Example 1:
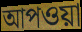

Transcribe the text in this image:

আপওয়া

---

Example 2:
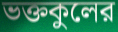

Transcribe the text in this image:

ভক্তকুলের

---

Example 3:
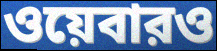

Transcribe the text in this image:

ওয়েবারও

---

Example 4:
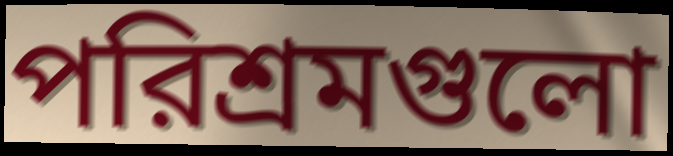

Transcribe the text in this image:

পরিশ্রমগুলো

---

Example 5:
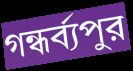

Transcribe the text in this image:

গন্ধর্ব্যপুর